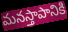
మనస్తాపానికి